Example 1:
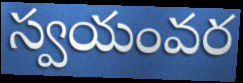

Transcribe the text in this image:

స్వయంవర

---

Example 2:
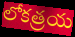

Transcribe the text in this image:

లోకత్రయ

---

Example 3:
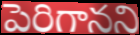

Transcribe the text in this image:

పెరిగానని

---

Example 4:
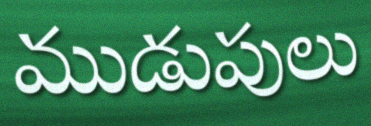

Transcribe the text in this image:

ముడుపులు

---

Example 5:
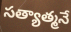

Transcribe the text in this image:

సత్యాత్మనే